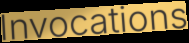
Invocations